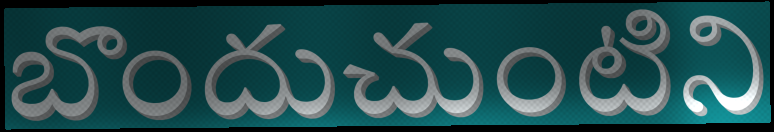
బొందుచుంటిని